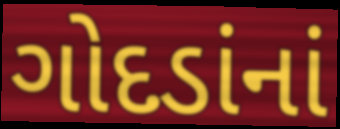
ગોદડાંનાં